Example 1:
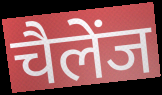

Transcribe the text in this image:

चैलेंज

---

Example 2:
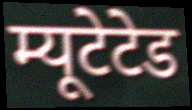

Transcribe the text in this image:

म्यूटेटेड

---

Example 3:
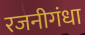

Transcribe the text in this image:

रजनीगंधा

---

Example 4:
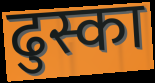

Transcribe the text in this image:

ढुस्का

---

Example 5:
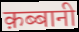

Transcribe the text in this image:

क़ब्बानी